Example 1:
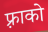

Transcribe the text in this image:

फ़्राको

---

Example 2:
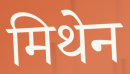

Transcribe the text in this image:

मिथेन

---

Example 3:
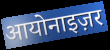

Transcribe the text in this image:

आयोनाइज़र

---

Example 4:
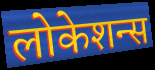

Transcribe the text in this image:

लोकेशन्स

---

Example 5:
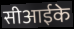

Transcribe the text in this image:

सीआईके